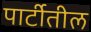
पार्टीतील